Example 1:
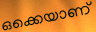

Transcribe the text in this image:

ഒക്കെയാണ്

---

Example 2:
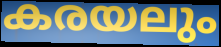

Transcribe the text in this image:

കരയലും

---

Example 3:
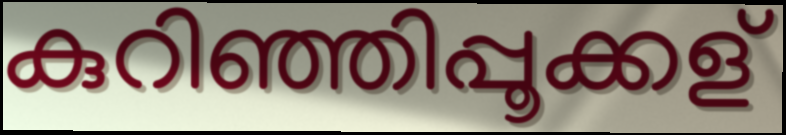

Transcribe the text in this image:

കുറിഞ്ഞിപ്പൂക്കള്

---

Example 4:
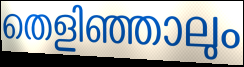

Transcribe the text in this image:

തെളിഞ്ഞാലും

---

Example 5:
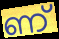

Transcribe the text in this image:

ണ്